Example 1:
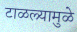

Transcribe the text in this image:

टाळल्यामुळे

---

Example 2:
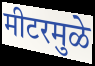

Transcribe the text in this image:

मीटरमुळे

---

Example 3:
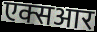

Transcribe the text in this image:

एक्सआर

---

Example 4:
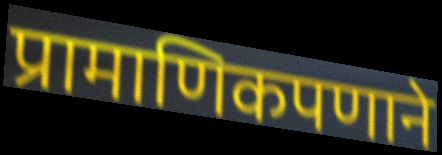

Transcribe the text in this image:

प्रामाणिकपणाने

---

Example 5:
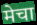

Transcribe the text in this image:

मेचा